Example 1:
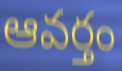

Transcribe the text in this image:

ఆవర్తం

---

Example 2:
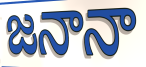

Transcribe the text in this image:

జనానా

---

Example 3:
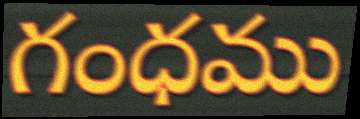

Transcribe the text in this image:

గంధము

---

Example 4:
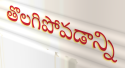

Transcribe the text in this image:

తొలగిపోవడాన్ని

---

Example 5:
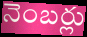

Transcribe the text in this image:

నెంబర్లు